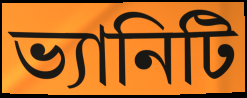
ভ্যানিটি